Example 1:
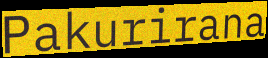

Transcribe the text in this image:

Pakurirana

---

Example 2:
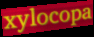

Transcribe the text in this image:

xylocopa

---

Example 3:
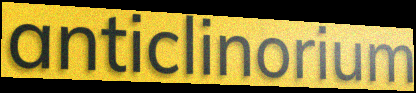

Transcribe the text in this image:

anticlinorium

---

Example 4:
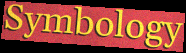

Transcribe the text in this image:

Symbology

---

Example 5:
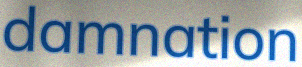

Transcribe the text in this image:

damnation